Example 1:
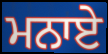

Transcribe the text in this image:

ਮਨਾਏ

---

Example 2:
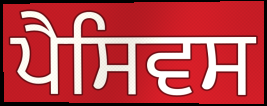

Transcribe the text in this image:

ਪੈਸਿਵਸ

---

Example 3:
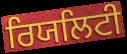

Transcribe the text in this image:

ਰਿਯਲਿਟੀ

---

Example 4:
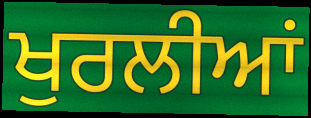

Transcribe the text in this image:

ਖੁਰਲੀਆਂ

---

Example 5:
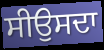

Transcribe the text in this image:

ਸੀਉਸਦਾ